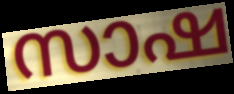
സാഷ